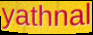
yathnal